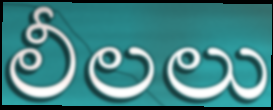
లీలలు